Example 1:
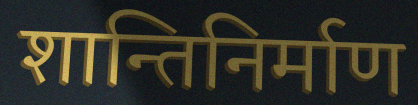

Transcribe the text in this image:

शान्तिनिर्माण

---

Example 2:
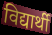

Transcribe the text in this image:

विद्यार्थी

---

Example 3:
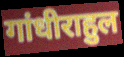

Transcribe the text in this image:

गांधीराहुल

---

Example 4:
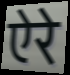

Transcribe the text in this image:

ऐरे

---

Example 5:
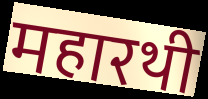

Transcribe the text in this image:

महारथी